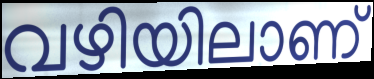
വഴിയിലാണ്